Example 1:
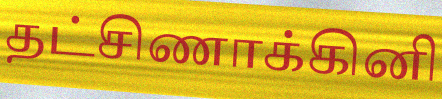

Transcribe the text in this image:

தட்சிணாக்கினி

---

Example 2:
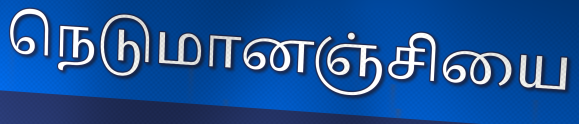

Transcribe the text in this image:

நெடுமானஞ்சியை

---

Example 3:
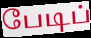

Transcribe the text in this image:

பேடிப்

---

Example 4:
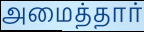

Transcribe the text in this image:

அமைத்தார்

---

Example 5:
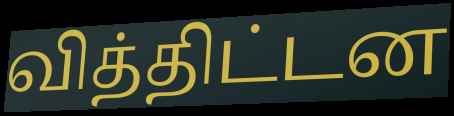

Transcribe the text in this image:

வித்திட்டன